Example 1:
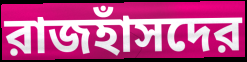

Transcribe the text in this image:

রাজহাঁসদের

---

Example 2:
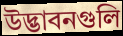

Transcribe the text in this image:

উদ্ভাবনগুলি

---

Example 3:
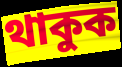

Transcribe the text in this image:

থাকুক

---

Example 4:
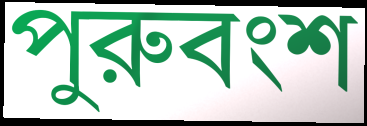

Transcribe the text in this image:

পুরুবংশ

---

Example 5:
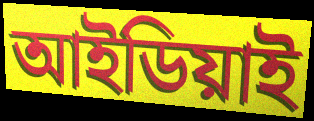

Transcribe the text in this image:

আইডিয়াই